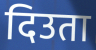
दिउता